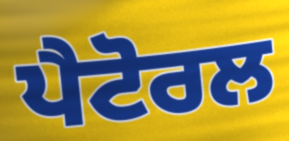
ਪੈਟੋਰਲ